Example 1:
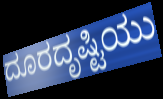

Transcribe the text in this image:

ದೂರದೃಷ್ಟಿಯು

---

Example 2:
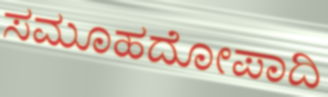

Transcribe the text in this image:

ಸಮೂಹದೋಪಾದಿ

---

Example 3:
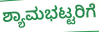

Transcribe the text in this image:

ಶ್ಯಾಮಭಟ್ಟರಿಗೆ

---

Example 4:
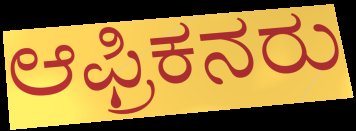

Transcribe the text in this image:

ಆಫ್ರಿಕನರು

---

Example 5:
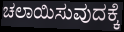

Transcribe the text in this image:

ಚಲಾಯಿಸುವುದಕ್ಕೆ